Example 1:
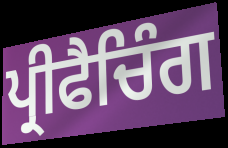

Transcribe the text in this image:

ਪ੍ਰੀਫੈਚਿੰਗ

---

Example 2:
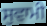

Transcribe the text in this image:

ਸੁਵਾਮੀ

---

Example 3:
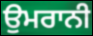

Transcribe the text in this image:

ਉਮਰਾਨੀ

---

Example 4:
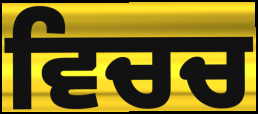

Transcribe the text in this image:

ਵਿਚਚ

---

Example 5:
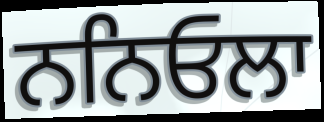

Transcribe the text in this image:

ਨਨਿਓਲਾ